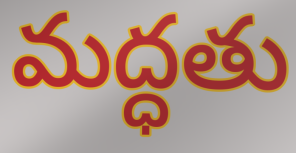
మద్ధతు